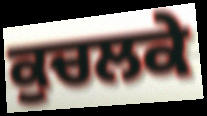
ਕੁਚਲਕੇ